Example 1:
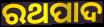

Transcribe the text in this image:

ରଥପାଦ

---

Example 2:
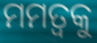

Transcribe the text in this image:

ମମତ୍ୱକୁ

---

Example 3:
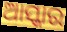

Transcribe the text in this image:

ଆସ୍କାର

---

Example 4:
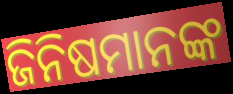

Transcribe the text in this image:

ଜିନିଷମାନଙ୍କ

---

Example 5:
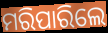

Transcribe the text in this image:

ମରିପାରିଲେ